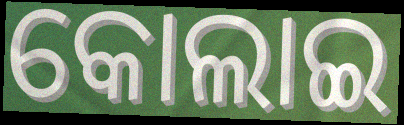
କୋଲାଇ